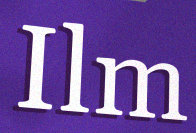
Ilm